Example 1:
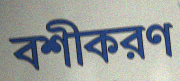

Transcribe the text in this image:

বশীকরণ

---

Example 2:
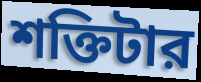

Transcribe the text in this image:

শক্তিটার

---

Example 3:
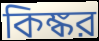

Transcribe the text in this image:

কিঙ্কর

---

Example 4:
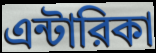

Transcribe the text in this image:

এন্টারিকা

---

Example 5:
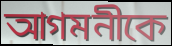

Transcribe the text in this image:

আগমনীকে